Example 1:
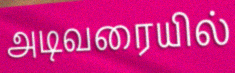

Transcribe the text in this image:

அடிவரையில்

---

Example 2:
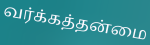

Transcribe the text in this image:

வர்க்கத்தன்மை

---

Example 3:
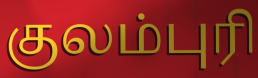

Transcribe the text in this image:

குலம்புரி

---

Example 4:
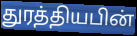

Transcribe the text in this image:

துரத்தியபின்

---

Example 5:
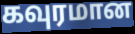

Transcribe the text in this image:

கவுரமான